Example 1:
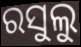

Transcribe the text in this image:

ରସୁଲୁ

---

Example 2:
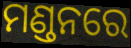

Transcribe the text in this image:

ମଣ୍ଡନରେ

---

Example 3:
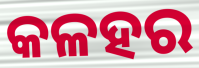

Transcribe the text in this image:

କଳହର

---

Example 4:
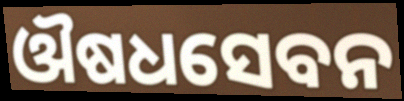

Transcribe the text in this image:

ଔଷଧସେବନ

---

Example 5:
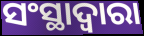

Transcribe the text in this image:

ସଂସ୍ଥାଦ୍ୱାରା